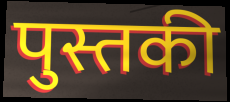
पुस्तकी